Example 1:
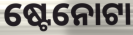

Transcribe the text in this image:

ଷ୍ଟେନୋଟା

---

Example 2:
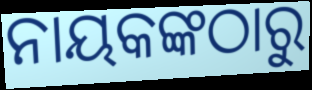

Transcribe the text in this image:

ନାୟକଙ୍କଠାରୁ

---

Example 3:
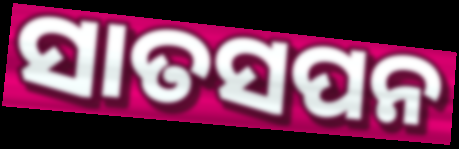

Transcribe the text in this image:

ସାତସପନ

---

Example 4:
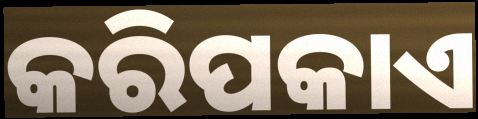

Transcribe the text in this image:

କରିପକାଏ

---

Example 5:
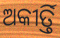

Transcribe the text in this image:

ଅକୀର୍ତ୍ତି